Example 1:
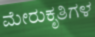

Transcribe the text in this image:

ಮೇರುಕೃತಿಗಳ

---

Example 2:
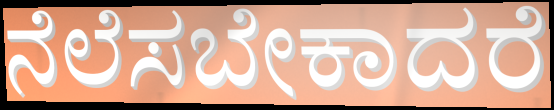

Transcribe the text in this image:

ನೆಲೆಸಬೇಕಾದರೆ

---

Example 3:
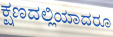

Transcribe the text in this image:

ಕ್ಷಣದಲ್ಲಿಯಾದರೂ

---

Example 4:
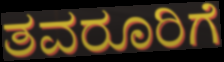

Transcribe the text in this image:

ತವರೂರಿಗೆ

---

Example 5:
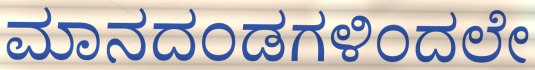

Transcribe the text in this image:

ಮಾನದಂಡಗಳಿಂದಲೇ